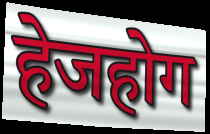
हेजहोग